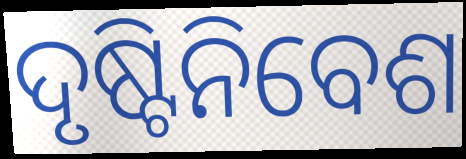
ଦୃଷ୍ଟିନିବେଶ